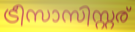
ട്രീസാസിസ്റ്റര്